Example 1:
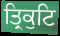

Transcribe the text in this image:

ਤ੍ਰਿਕੁਟਿ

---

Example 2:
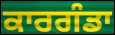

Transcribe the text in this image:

ਕਾਰਗੰਡਾ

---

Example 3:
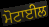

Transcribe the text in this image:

ਮੋਟਾਈਲ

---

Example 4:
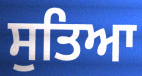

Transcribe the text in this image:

ਸੁਤਿਆ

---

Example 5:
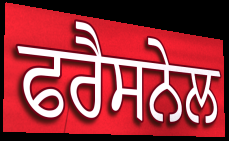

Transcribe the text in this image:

ਫਰੈਸਨੇਲ